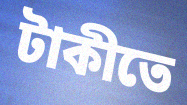
টাকীতে